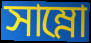
সাম্নো